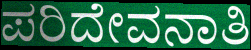
ಪರಿದೇವನಾತಿ